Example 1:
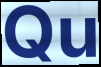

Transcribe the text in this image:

Qu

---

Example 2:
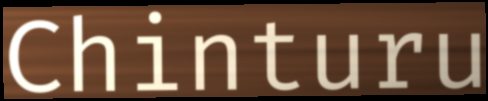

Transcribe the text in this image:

Chinturu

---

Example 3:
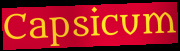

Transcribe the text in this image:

Capsicum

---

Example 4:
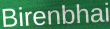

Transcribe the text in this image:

Birenbhai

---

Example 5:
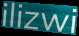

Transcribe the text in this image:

ilizwi